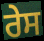
ਰੇਸ